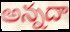
అన్నదా